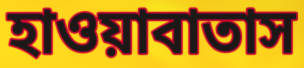
হাওয়াবাতাস